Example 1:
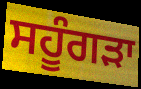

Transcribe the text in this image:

ਸਹੂੰਗੜਾ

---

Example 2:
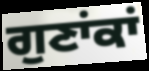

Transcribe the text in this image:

ਗੁਣਾਂਕਾਂ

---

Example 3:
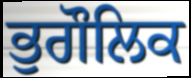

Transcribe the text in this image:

ਭੁਗੌਲਿਕ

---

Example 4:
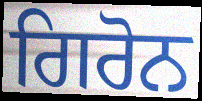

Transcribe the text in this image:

ਗਿਰੋਨ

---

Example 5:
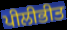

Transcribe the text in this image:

ਪੀਲੀਭੀਤ